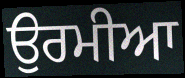
ਉਰਮੀਆ